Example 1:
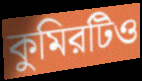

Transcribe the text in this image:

কুমিরটিও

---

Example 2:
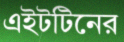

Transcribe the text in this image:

এইটটিনের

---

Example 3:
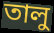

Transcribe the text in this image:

তালু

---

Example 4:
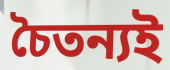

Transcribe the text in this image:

চৈতন্যই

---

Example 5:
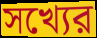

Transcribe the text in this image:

সখ্যের